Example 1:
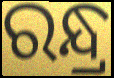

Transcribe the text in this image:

ରନ୍ଧ୍ର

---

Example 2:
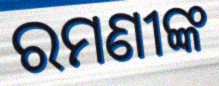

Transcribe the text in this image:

ରମଣୀଙ୍କ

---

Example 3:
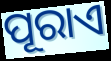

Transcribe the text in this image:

ପୂରାଏ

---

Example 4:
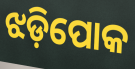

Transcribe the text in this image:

ଝଡ଼ିପୋକ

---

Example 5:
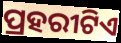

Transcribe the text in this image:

ପ୍ରହରୀଟିଏ